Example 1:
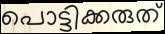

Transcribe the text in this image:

പൊട്ടിക്കരുത്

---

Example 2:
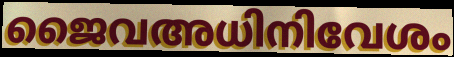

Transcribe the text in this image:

ജൈവഅധിനിവേശം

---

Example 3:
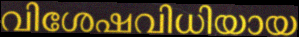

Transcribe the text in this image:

വിശേഷവിധിയായ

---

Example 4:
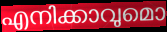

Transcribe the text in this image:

എനിക്കാവുമൊ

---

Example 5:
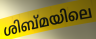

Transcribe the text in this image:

ശിബ്മയിലെ